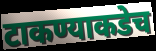
टाकण्याकडेच